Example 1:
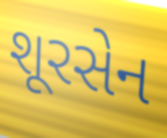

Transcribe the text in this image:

શૂરસેન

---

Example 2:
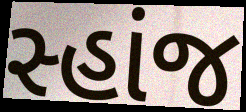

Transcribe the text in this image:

સ્હાંજ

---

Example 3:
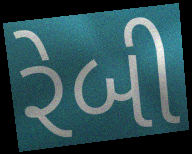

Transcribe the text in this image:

રેબી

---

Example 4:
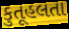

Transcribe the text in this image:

કુતૂહલતા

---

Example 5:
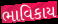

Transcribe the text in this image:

ભાવિકાય